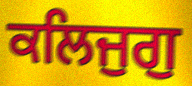
ਕਲਿਜੁਗੁ